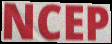
NCEP